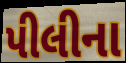
પીલીના